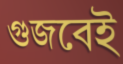
গুজবেই